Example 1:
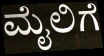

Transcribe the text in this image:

ಮೈಲಿಗೆ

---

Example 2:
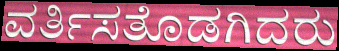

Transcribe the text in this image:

ವರ್ತಿಸತೊಡಗಿದರು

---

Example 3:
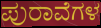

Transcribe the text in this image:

ಪುರಾವೆಗಳ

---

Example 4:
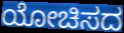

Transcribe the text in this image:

ಯೋಚಿಸದ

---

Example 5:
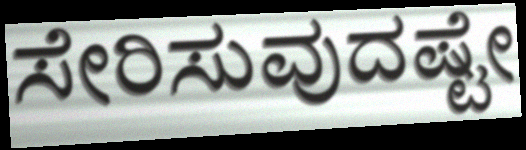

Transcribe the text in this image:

ಸೇರಿಸುವುದಷ್ಟೇ